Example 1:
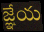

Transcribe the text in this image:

జ్ఞేయ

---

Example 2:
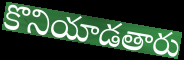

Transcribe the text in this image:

కొనియాడతారు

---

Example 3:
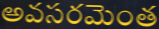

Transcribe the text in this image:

అవసరమెంత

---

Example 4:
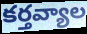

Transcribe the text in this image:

కర్తవ్యాల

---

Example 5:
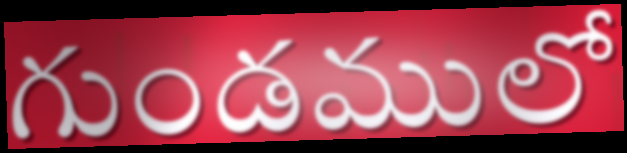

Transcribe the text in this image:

గుండములో